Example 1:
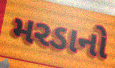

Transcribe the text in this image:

મરડાનો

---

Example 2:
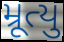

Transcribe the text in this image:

મ્રૂત્યુ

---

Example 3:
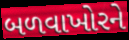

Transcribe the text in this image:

બળવાખોરને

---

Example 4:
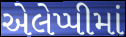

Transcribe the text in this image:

એલેપ્પીમાં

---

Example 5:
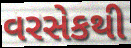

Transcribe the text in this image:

વરસેકથી